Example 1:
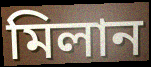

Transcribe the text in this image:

মিলান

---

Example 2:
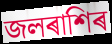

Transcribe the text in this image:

জলৰাশিৰ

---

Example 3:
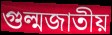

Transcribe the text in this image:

গুল্মজাতীয়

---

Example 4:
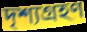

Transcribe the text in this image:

দৃশ্যগ্ৰহণ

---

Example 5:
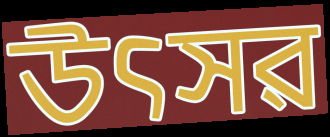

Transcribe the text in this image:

উৎসৱ